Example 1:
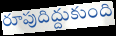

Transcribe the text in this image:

రూపుదిద్దుకుంది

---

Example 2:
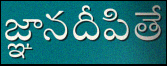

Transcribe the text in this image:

జ్ఞానదీపితే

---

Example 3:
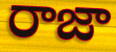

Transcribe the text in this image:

రాజా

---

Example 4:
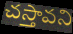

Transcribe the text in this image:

చస్తావని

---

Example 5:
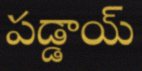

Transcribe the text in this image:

పడ్డాయ్